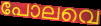
പോലവെ